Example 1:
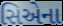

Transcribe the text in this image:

સિએના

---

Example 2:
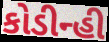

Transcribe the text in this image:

કોડીન્હી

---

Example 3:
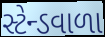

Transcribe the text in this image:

સ્ટેન્ડવાળા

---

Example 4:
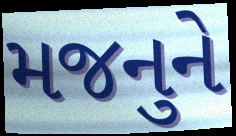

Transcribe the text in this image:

મજનુને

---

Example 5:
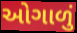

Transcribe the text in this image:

ઓગાળું